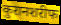
कुरानशरीफ